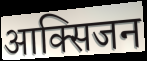
आक्सिजन